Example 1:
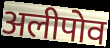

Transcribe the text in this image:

अलीपोव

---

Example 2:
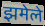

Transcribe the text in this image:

झमेले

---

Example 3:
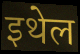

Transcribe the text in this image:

इथेल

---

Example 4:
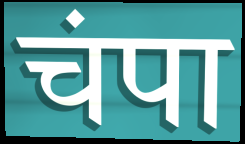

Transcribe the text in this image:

चंपा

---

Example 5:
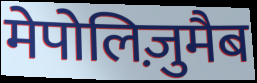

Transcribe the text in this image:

मेपोलिज़ुमैब